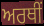
ਅਰਥੀਂ